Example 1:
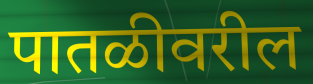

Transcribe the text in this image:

पातळीवरील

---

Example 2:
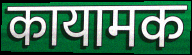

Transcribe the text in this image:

कायामक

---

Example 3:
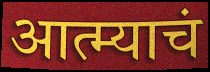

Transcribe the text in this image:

आत्म्याचं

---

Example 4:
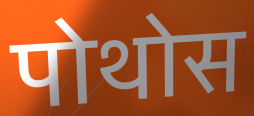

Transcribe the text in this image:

पोथोस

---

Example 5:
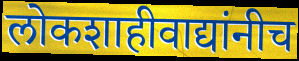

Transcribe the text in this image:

लोकशाहीवाद्यांनीच